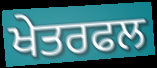
ਖੇਤਰਫਲ